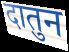
दातुन